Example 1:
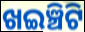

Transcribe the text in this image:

ଖଇଞ୍ଚିଟି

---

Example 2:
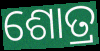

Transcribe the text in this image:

ଶୋତ୍ର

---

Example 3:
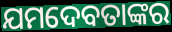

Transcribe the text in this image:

ଯମଦେବତାଙ୍କର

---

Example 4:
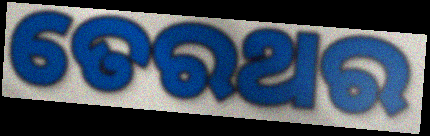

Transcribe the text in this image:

ତେରଥର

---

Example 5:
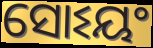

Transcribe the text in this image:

ସୋଽୟଂ